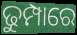
ଢୁମ୍ପାରେ